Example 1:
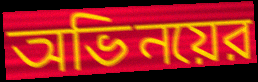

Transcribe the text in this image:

অভিনয়ের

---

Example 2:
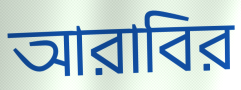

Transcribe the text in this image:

আরাবির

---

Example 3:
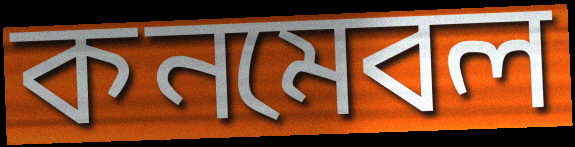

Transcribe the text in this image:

কনমেবল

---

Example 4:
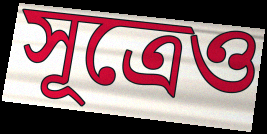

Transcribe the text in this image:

সূত্রেও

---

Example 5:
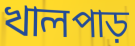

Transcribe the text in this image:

খালপাড়